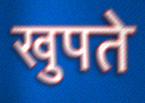
खुपते